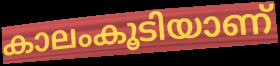
കാലംകൂടിയാണ്